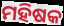
ମହିଷକ